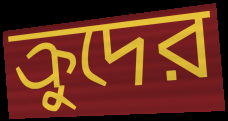
ক্রুদের